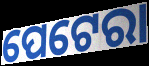
ପେଟେରା